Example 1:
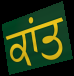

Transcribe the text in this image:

ਕਾਂਤ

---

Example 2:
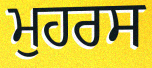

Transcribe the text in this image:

ਮੁਹਰਸ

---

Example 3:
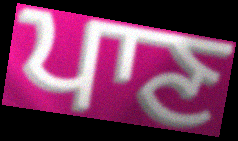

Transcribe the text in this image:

ਪਾਣ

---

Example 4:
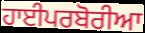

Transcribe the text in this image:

ਹਾਈਪਰਬੋਰੀਆ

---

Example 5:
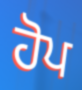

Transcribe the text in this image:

ਹੋਪ